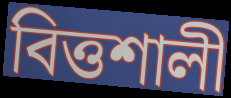
বিত্তশালী